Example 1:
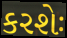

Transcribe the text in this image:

કરશેઃ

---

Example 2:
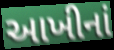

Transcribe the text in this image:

આખીનાં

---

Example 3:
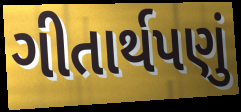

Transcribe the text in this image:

ગીતાર્થપણું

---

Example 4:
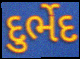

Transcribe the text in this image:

દુર્ભેદ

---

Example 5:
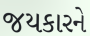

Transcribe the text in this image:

જયકારને